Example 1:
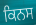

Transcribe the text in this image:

ਕਿਨਸ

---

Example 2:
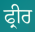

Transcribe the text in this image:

ਫ੍ਰੀਰ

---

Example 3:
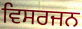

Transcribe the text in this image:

ਵਿਸਰਜਨ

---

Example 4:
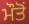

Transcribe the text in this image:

ਮੌਤੋਂ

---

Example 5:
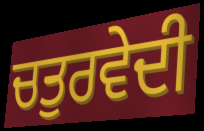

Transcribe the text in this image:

ਚਤੁਰਵੇਦੀ